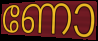
ണോ